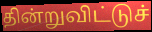
தின்றுவிட்டுச்